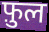
फ़ुल